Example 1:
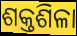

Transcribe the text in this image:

ଶକ୍ତଶିଳା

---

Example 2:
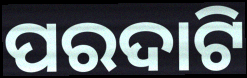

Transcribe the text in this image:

ପରଦାଟି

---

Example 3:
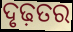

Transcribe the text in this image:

ଦୃଢ଼ତର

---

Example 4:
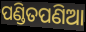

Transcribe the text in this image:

ପଣ୍ଡିତପଣିଆ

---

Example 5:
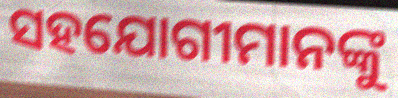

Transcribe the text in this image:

ସହଯୋଗୀମାନଙ୍କୁ